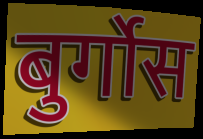
बुर्गोस